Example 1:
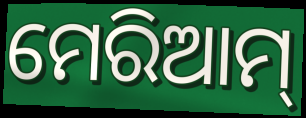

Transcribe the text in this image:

ମେରିଆମ୍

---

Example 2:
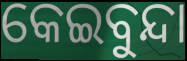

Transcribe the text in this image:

କେଇବୁନ୍ଦା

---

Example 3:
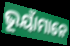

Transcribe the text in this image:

ଭୂୟାଁମାନେ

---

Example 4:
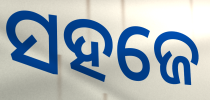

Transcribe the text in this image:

ସହଜେ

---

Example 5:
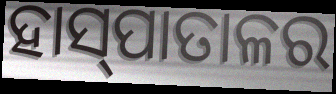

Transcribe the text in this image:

ହାସ୍‍ପାତାଳର